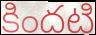
కిందటి